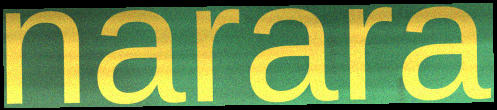
narara